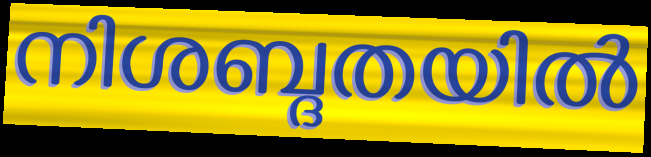
നിശബ്ദതയിൽ